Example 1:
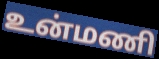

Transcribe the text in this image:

உன்மணி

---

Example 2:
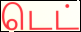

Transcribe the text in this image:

டெட்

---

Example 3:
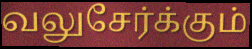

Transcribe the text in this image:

வலுசேர்க்கும்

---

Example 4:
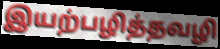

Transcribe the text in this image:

இயற்பழித்தவழி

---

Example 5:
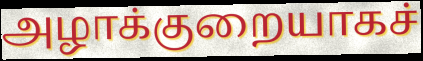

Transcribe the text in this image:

அழாக்குறையாகச்